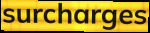
surcharges